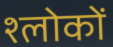
श्लोकों